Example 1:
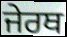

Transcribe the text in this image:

ਜੇਰਥ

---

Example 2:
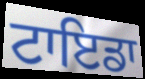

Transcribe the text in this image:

ਟਾਇਡਾ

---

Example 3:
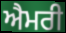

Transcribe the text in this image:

ਐਮਰੀ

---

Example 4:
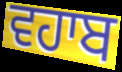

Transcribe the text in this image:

ਵਹਾਬ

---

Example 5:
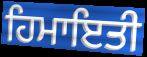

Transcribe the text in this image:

ਹਿਮਾਇਤੀ